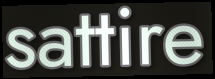
sattire